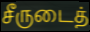
சீருடைத்